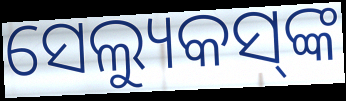
ସେଲ୍ୟୁକସ୍‌ଙ୍କ